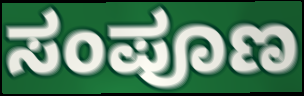
ಸಂಪೂಣ